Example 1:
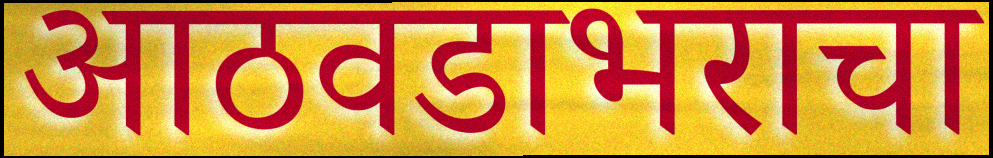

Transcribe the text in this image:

आठवडाभराचा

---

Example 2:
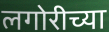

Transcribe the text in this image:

लगोरीच्या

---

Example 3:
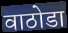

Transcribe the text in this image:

वाठोडा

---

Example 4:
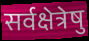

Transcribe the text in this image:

सर्वक्षेत्रेषु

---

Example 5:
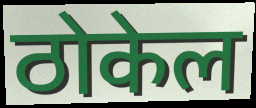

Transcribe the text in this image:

ठोकेल